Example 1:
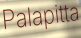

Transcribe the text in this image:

Palapitta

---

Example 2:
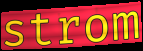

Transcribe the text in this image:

strom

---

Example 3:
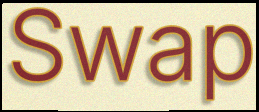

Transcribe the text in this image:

Swap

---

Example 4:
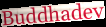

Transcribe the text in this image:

Buddhadev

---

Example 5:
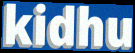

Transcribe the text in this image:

kidhu